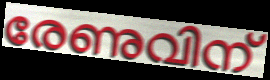
രേണുവിന്